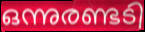
ഒന്നുരണ്ടടി